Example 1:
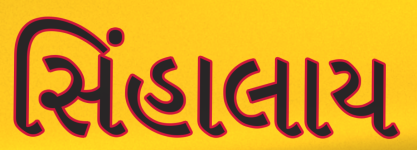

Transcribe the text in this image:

સિંહાલાય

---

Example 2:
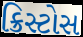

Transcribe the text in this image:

ક્રિસ્ટોસ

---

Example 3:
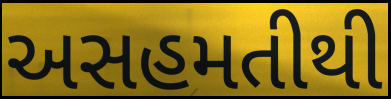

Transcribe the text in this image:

અસહમતીથી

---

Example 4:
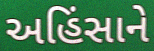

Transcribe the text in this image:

અહિંસાને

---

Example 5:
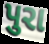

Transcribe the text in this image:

પુરા